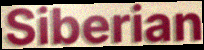
Siberian